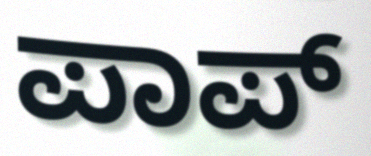
ಪಾಪ್